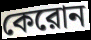
কেরোন